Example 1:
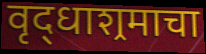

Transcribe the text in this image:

वृद्धाश्रमाचा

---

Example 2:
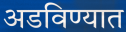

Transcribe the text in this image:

अडविण्यात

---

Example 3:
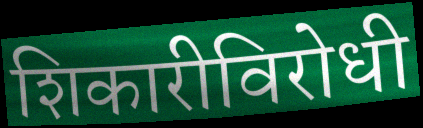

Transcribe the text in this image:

शिकारीविरोधी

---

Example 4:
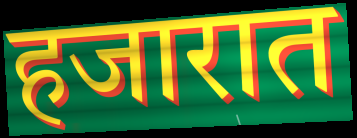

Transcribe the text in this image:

हजारात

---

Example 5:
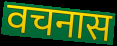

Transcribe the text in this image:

वचनास